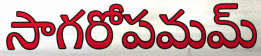
సాగరోపమమ్